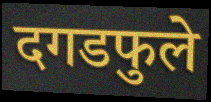
दगडफुले